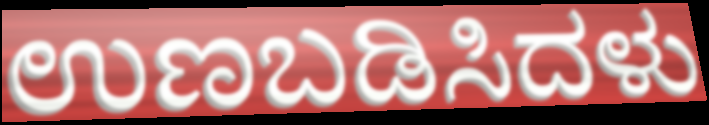
ಉಣಬಡಿಸಿದಳು